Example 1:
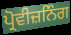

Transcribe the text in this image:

ਪ੍ਰੋਵੀਜ਼ਨਿੰਗ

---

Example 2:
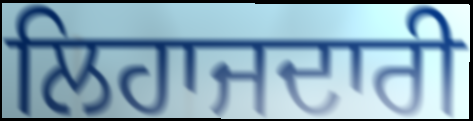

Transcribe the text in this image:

ਲਿਹਾਜਦਾਰੀ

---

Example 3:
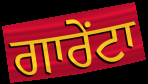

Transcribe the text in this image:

ਗਾਰੇਂਟਾ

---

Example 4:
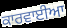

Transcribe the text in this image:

ਕਾਰਵਾਈਆ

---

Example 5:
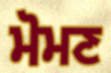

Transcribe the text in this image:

ਮੋਮਣ